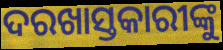
ଦରଖାସ୍ତକାରୀଙ୍କୁ